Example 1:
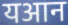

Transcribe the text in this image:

यआन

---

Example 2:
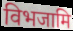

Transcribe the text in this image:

विभजामि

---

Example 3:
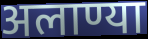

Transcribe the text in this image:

अलाण्या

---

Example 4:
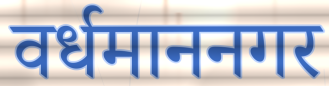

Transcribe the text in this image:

वर्धमाननगर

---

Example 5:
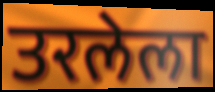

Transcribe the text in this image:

उरलेला